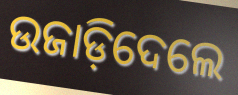
ଉଜାଡ଼ିଦେଲେ